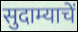
सुदाम्याचें